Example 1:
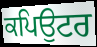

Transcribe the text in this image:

ਕਪਿਉਟਰ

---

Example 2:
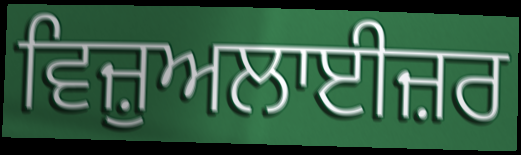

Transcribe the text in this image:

ਵਿਜ਼ੁਅਲਾਈਜ਼ਰ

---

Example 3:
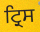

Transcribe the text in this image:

ਟ੍ਰਿਸ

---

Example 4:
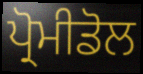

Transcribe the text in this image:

ਪ੍ਰੋਮੀਡੋਲ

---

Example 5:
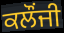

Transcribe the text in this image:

ਕਲੌਂਜੀ